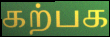
கற்பக